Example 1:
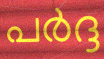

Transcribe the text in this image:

പർദ്ദ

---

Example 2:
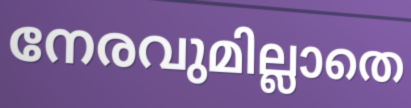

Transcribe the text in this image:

നേരവുമില്ലാതെ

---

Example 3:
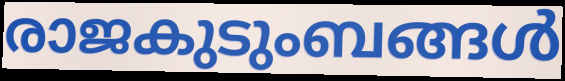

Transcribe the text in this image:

രാജകുടുംബങ്ങൾ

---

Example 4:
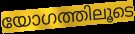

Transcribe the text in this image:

യോഗത്തിലൂടെ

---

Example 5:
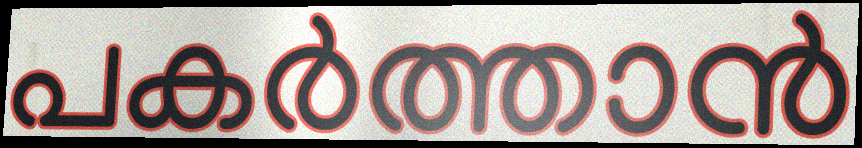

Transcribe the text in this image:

പകർത്താൻ